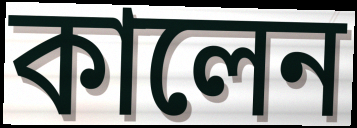
কালেন